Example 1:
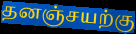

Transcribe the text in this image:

தனஞ்சயற்கு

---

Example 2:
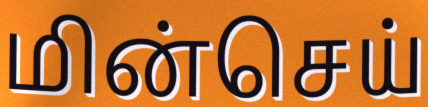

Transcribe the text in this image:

மின்செய்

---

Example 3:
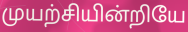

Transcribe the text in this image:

முயற்சியின்றியே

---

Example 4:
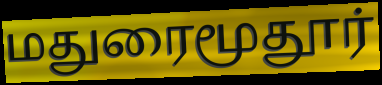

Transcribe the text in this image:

மதுரைமூதூர்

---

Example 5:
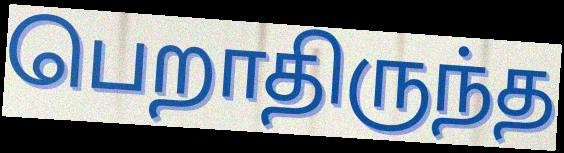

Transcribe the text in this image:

பெறாதிருந்த